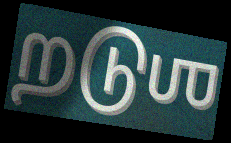
றடுஶ